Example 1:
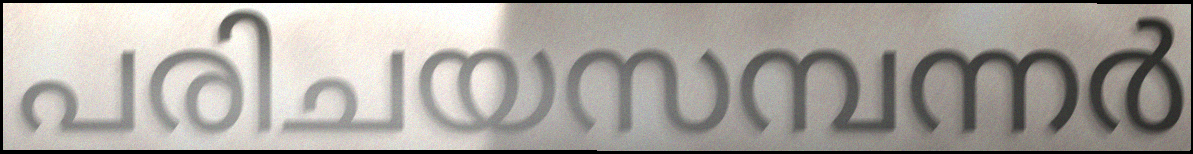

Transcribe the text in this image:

പരിചയസമ്പന്നർ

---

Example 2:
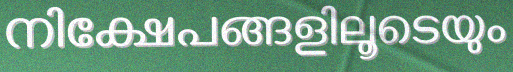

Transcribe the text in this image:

നിക്ഷേപങ്ങളിലൂടെയും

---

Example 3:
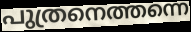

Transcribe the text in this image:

പുത്രനെത്തന്നെ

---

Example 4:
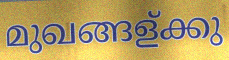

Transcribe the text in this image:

മുഖങ്ങള്ക്കു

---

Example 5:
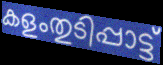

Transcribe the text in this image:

കളംതുടിപ്പാട്ട്